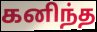
கனிந்த